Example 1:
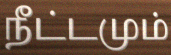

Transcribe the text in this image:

நீட்டமும்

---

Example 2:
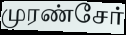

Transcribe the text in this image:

முரண்சேர்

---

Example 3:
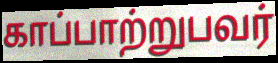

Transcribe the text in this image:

காப்பாற்றுபவர்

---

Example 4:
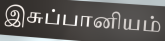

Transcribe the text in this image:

இசுப்பானியம்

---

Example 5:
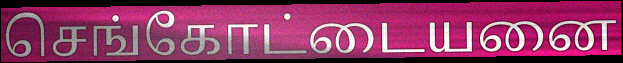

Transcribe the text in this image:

செங்கோட்டையனை